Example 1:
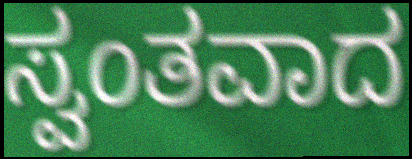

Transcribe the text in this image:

ಸ್ವಂತವಾದ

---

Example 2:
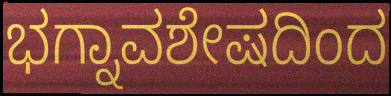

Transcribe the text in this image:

ಭಗ್ನಾವಶೇಷದಿಂದ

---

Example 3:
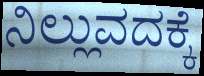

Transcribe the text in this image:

ನಿಲ್ಲುವದಕ್ಕೆ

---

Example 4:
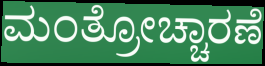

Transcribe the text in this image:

ಮಂತ್ರೋಚ್ಚಾರಣೆ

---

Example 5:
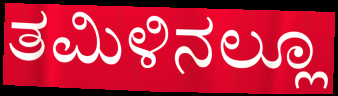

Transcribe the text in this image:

ತಮಿಳಿನಲ್ಲೂ